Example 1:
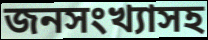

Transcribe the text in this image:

জনসংখ্যাসহ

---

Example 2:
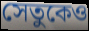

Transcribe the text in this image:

সেতুকেও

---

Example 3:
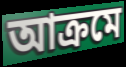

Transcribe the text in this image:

আক্রমে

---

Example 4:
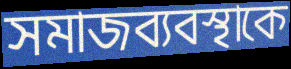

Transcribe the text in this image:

সমাজব্যবস্থাকে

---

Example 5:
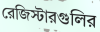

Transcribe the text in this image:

রেজিস্টারগুলির